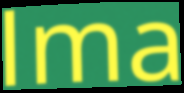
Ima